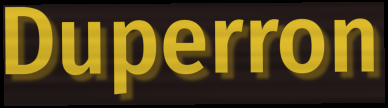
Duperron